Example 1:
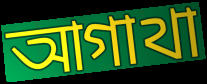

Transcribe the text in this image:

আগাথা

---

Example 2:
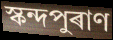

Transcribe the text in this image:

স্কন্দপুৰাণ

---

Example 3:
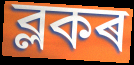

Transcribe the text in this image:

ব্লকৰ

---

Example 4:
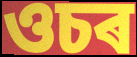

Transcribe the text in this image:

ওচৰ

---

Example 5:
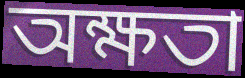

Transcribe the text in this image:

অক্ষতা